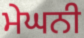
ਮੇਘਨੀ